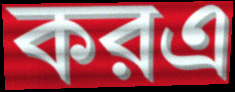
করএ